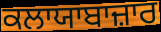
ਕਲਾਯਾਬਾਜ਼ਾਰ